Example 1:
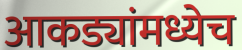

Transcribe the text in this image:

आकड्यांमध्येच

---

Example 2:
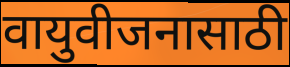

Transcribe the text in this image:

वायुवीजनासाठी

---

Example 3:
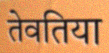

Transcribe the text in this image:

तेवतिया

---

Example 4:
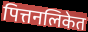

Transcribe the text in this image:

पित्तनलिकेत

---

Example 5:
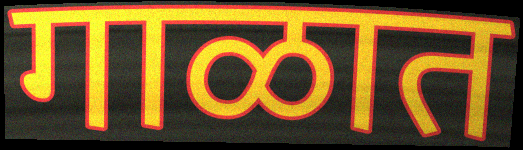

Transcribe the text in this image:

गाळात